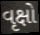
વૃક્ષો